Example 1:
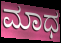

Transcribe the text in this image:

ಮಾಧ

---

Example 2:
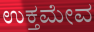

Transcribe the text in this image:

ಉಕ್ತಮೇವ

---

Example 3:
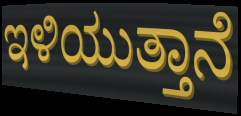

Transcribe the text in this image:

ಇಳಿಯುತ್ತಾನೆ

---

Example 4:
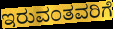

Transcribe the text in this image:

ಇರುವಂತವರಿಗೆ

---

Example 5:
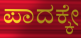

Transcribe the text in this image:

ಪಾದಕ್ಕೇ